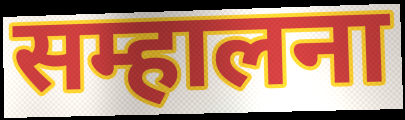
सम्हालना